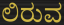
ಲಿರುವ